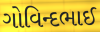
ગોવિન્દભાઈ